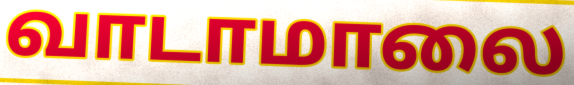
வாடாமாலை